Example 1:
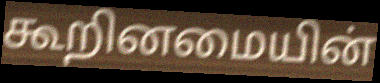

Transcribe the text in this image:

கூறினமையின்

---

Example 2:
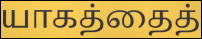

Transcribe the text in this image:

யாகத்தைத்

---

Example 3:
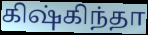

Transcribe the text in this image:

கிஷ்கிந்தா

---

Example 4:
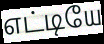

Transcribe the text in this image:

எட்டியே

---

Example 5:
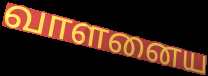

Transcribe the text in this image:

வாளனைய